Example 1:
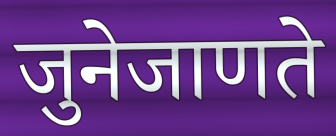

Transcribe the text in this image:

जुनेजाणते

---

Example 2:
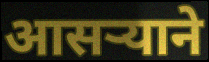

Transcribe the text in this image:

आसर्‍याने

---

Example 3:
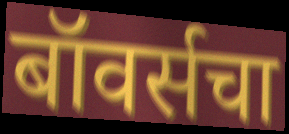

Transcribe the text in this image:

बॉवर्सचा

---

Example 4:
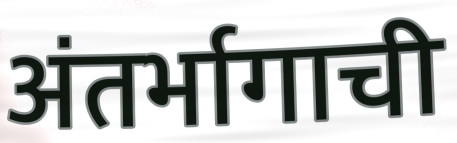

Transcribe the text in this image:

अंतर्भागाची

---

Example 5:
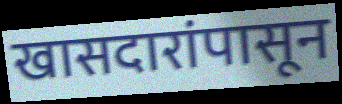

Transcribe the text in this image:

खासदारांपासून